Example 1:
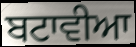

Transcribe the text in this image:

ਬਟਾਵੀਆ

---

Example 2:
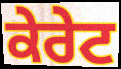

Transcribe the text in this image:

ਕੇਰੇਟ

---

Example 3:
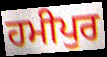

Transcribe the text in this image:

ਹਮੀਪੁਰ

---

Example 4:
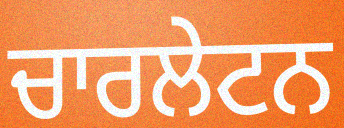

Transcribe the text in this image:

ਚਾਰਲੇਟਨ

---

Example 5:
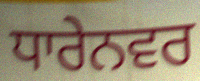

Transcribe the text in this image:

ਧਾਰੇਨਵਰ